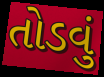
તોડવું